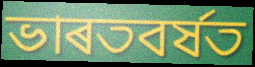
ভাৰতবৰ্ষত